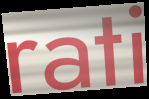
rati